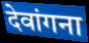
देवांगना